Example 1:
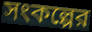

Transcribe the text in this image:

সংকল্পের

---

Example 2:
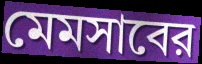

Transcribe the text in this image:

মেমসাবের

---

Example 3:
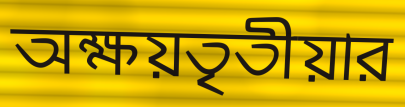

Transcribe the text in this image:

অক্ষয়তৃতীয়ার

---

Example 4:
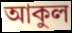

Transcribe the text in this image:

আকুল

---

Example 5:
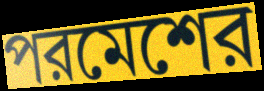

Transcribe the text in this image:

পরমেশের